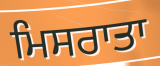
ਮਿਸਰਾਤਾ